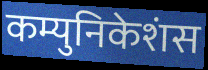
कम्‍युनिकेशंस